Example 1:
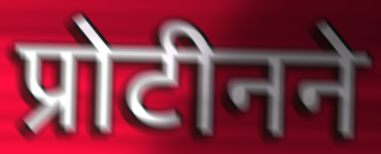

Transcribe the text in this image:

प्रोटीनने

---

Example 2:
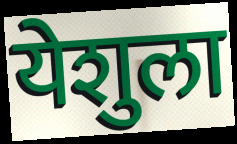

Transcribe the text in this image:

येशुला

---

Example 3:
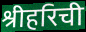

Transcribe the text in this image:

श्रीहरिची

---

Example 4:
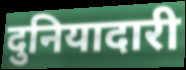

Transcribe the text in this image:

दुनियादारी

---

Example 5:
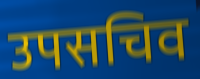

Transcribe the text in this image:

उपसचिव